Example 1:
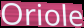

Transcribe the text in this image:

Oriole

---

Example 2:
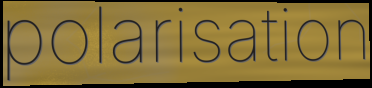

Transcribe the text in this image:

polarisation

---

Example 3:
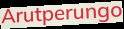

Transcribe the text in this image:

Arutperungo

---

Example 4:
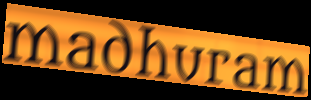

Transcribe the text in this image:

madhuram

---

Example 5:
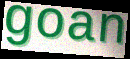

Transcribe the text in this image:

goan